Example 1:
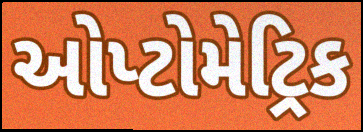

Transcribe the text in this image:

ઓપ્ટોમેટ્રિક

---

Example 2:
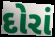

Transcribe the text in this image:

દોરાં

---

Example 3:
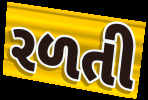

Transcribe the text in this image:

રળતી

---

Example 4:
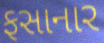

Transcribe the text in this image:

ફસાનાર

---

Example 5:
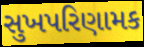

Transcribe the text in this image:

સુખપરિણામક